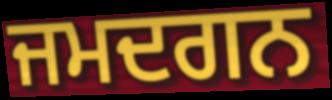
ਜਮਦਗਨ